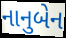
નાનુબેન